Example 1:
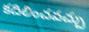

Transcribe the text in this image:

కదిలించవచ్చు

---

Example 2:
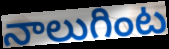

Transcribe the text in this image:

నాలుగింట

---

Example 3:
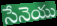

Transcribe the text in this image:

సేనెయు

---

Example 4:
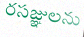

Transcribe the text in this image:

రసజ్ఞులను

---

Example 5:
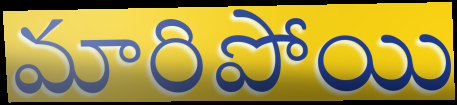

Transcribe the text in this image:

మారిపోయి